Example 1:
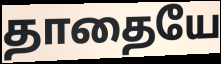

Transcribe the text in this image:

தாதையே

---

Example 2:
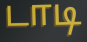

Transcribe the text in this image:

டாடி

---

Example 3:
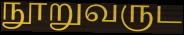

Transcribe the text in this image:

நூறுவருட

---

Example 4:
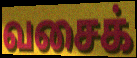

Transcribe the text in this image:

வசைக்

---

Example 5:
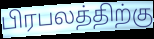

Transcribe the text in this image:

பிரபலத்திற்கு